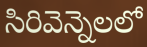
సిరివెన్నెలలో